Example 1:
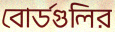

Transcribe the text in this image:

বোর্ডগুলির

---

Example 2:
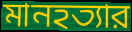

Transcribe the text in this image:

মানহত্যার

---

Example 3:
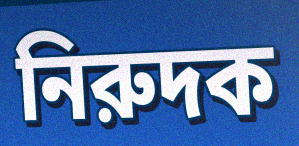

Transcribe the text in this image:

নিরুদক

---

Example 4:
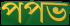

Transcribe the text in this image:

পপভ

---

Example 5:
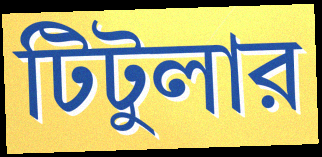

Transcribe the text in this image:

টিটুলার